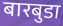
बारबुडा